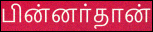
பின்னர்தான்